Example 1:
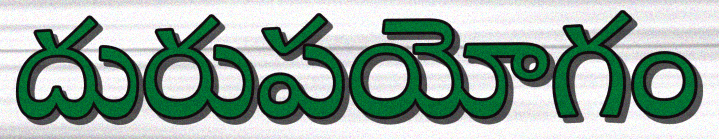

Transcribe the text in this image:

దురుపయోగం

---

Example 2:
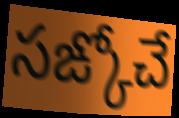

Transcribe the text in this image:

సఙ్కోచే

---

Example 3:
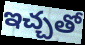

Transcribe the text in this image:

ఇచ్చతో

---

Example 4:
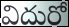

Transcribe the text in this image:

విదురో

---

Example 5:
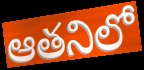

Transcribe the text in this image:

ఆతనిలో